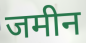
जमीन